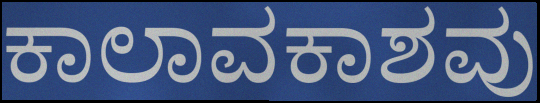
ಕಾಲಾವಕಾಶವು